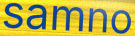
samno